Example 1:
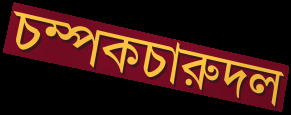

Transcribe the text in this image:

চম্পকচারুদল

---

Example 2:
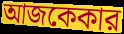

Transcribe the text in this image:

আজকেকার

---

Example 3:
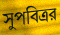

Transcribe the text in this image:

সুপবিত্রর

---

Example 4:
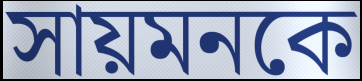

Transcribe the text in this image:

সায়মনকে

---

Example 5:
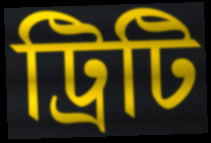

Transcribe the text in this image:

ট্রিটি